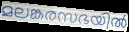
മലങ്കരസഭയിൽ